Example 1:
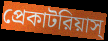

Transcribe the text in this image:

প্রেকাটরিয়াস্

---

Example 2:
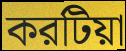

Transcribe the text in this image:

করটিয়া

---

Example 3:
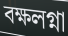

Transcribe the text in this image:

বক্ষলগ্না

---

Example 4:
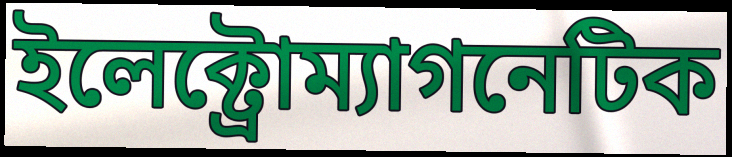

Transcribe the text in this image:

ইলেক্ট্রোম্যাগনেটিক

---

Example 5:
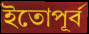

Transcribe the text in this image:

ইতোপূর্ব